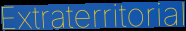
Extraterritorial